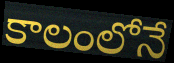
కాలంలోనే